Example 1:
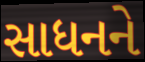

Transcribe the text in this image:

સાધનને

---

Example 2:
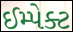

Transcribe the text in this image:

ઈમ્પેક્ટ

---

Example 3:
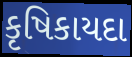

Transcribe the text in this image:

કૃષિકાયદા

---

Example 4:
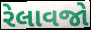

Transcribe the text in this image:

રેલાવજો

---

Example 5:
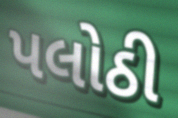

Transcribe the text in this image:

પલોઠી